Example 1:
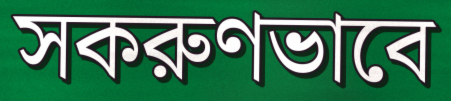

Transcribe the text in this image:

সকরুণভাবে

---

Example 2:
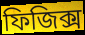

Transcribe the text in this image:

ফিজিক্স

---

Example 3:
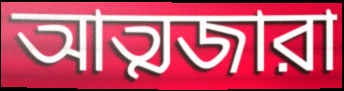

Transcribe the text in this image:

আত্মজারা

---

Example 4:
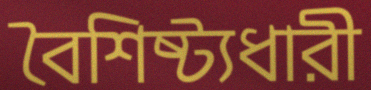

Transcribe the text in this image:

বৈশিষ্ট্যধারী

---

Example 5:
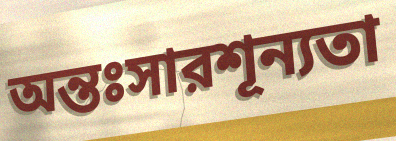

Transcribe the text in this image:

অন্তঃসারশূন্যতা